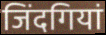
जिंदगियां